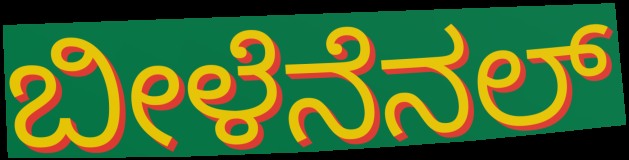
ಬೀಳೆನೆನಲ್